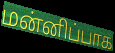
மன்னிப்பாக